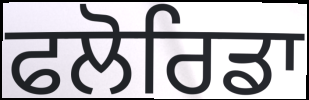
ਫਲੋਰਿਡਾ